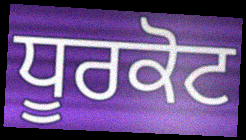
ਧੂਰਕੋਟ